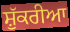
ਸ਼ੁੱਕਰੀਆ